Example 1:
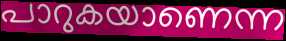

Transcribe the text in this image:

പാറുകയാണെന്ന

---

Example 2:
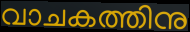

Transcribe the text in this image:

വാചകത്തിനു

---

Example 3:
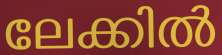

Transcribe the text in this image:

ലേക്കിൽ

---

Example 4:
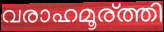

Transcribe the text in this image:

വരാഹമൂര്ത്തി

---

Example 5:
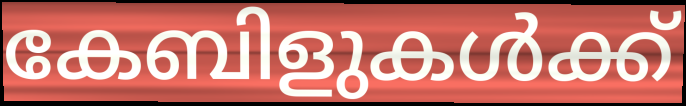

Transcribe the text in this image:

കേബിളുകൾക്ക്